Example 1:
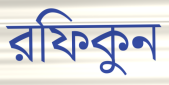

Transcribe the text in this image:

রফিকুন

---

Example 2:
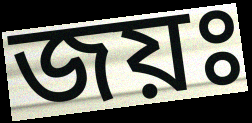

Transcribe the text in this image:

জয়ঃ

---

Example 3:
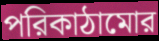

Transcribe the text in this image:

পরিকাঠামোর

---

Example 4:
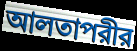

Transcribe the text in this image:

আলতাপরীর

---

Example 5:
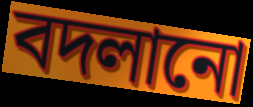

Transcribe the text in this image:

বদলানো